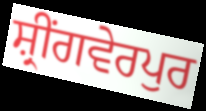
ਸ਼੍ਰੀਂਗਵੇਰਪੁਰ